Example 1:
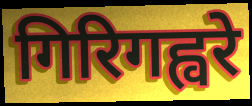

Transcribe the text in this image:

गिरिगह्वरे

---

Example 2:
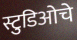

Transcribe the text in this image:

स्टुडिओचे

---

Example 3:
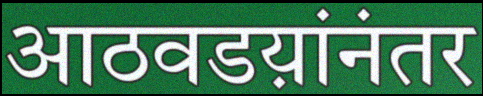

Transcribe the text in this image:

आठवडय़ांनंतर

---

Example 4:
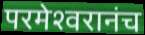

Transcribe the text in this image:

परमेश्वरानंच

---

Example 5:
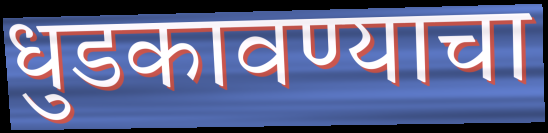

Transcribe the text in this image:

धुडकावण्याचा